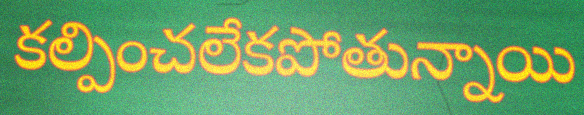
కల్పించలేకపోతున్నాయి